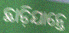
ଛାଡ଼ିଯାନ୍ତେ